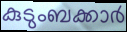
കുടുംബക്കാർ